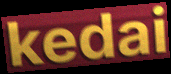
kedai